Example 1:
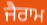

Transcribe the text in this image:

ਜੈਰਾਮ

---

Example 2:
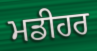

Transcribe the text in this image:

ਮਡੀਹਰ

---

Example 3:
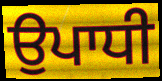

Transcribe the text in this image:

ਉਪਾਧੀ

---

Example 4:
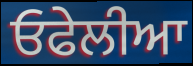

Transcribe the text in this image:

ਓਫੇਲੀਆ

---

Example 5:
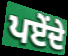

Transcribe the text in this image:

ਪਏਂਦੇ